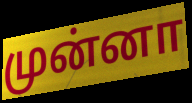
முன்னா